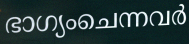
ഭാഗ്യംചെന്നവർ